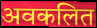
अवकलित